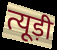
त्यूड़ी